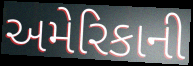
અમેરિકાની